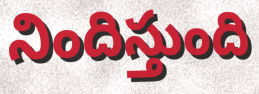
నిందిస్తుంది